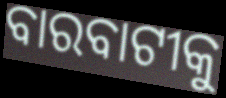
ବାରବାଟୀକୁ